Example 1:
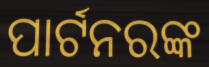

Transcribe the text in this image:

ପାର୍ଟନରଙ୍କ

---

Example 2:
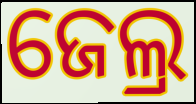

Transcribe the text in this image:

ଜେଲ୍ର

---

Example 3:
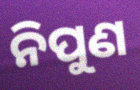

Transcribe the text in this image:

ନିପୁଣ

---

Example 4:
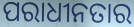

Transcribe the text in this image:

ପରାଧୀନତାର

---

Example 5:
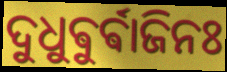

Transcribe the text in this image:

ଦୁଧୁଵୁର୍ଵାଜିନଃ